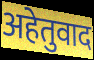
अहेतुवाद